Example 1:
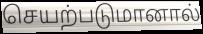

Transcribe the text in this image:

செயற்படுமானால்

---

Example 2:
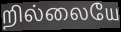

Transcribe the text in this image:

றில்லையே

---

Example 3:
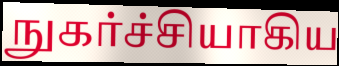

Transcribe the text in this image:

நுகர்ச்சியாகிய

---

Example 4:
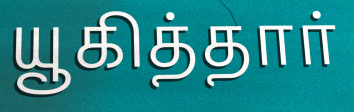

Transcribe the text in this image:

யூகித்தார்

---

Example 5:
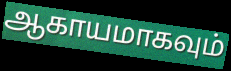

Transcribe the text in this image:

ஆகாயமாகவும்